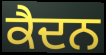
ਕੈਦਨ